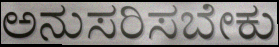
ಅನುಸರಿಸಬೇಕು